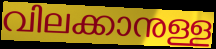
വിലക്കാനുള്ള